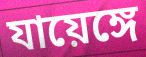
যায়েঙ্গে